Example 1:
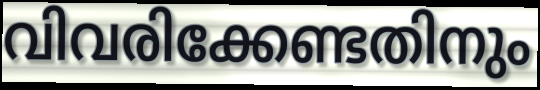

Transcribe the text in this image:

വിവരിക്കേണ്ടതിനും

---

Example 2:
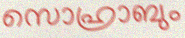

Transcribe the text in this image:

സൊഹ്രാബും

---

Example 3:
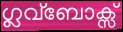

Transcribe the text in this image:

ഗ്ലവ്ബോക്സ്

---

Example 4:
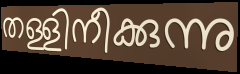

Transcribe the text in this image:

തള്ളിനീക്കുന്നു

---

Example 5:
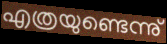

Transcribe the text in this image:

എത്രയുണ്ടെന്നു്